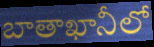
బాతాఖానీలో